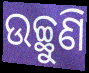
ଉଚ୍ଛୁଣି